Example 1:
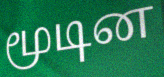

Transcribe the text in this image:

மூடின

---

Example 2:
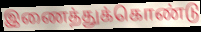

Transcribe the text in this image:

இணைத்துக்கொண்டு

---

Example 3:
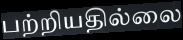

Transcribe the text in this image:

பற்றியதில்லை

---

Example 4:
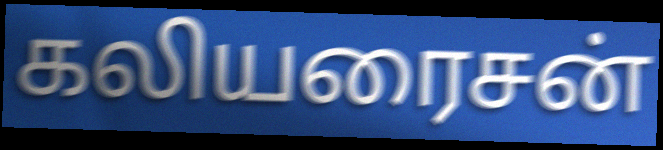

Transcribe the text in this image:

கலியரைசன்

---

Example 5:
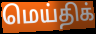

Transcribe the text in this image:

மெய்திக்